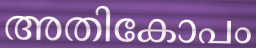
അതികോപം